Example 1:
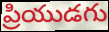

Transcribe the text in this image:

ప్రియుడగు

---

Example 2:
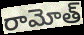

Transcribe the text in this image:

రామోత్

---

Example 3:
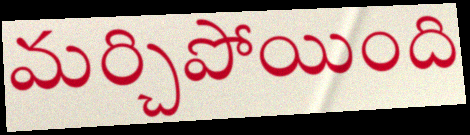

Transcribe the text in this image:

మర్చిపోయింది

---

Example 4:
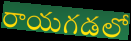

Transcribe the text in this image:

రాయగడలో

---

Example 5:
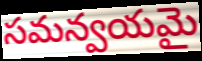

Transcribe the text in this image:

సమన్వయమై